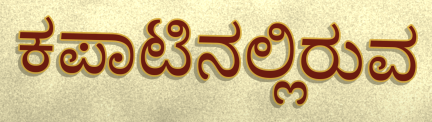
ಕಪಾಟಿನಲ್ಲಿರುವ